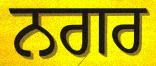
ਨਗਰ